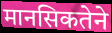
मानसिकतेने